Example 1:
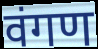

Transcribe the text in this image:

वंगण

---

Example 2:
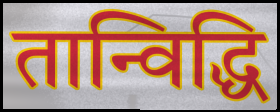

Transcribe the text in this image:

तान्विद्धि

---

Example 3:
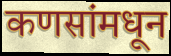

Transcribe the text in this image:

कणसांमधून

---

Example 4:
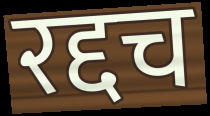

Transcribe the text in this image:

रद्दच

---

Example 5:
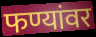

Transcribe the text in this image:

फण्यांवर